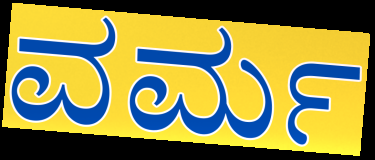
ವರ್ಮ